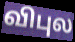
விபுல